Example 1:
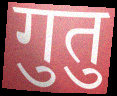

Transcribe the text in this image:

गुतु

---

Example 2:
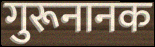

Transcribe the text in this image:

गुरूनानक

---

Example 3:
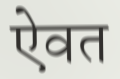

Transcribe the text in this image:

ऐवत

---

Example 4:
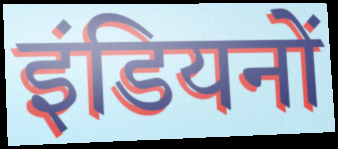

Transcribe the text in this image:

इंडियनों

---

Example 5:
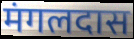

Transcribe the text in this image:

मंगलदास